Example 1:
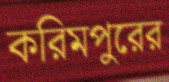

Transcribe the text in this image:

করিমপুরের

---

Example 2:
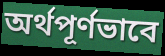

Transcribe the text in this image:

অর্থপূর্ণভাবে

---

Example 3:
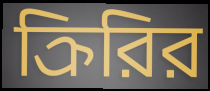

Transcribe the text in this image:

ক্রিরির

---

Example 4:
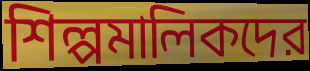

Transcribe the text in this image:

শিল্পমালিকদের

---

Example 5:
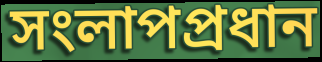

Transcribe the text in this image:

সংলাপপ্রধান